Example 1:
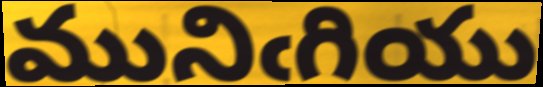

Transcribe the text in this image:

మునిఁగియు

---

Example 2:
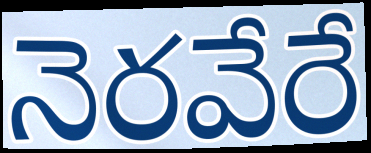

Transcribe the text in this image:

నెరవేరే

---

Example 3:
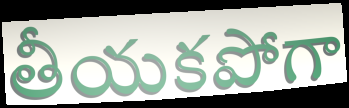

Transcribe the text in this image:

తీయకపోగా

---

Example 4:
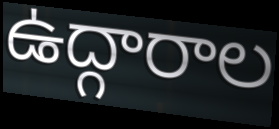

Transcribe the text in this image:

ఉద్గారాల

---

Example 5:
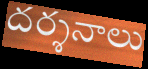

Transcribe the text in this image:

దర్శనాలు